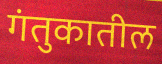
गंतुकातील